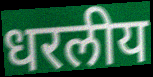
धरलीय